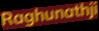
Raghunathji